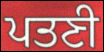
ਪਤਣੀ